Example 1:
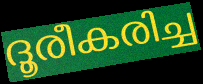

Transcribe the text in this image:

ദൂരീകരിച്ച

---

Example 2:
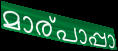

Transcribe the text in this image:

മാര്പാപ്പാ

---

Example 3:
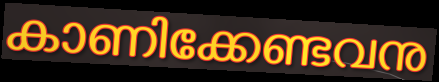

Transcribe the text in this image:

കാണിക്കേണ്ടവനു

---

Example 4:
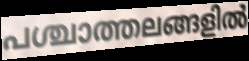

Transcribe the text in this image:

പശ്ചാത്തലങ്ങളിൽ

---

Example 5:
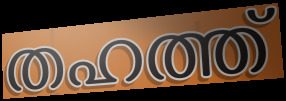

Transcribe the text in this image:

തഹത്ത്